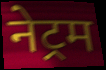
नेट्रम